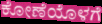
ಕೋಣೆಯೊಳಗೆ